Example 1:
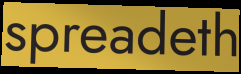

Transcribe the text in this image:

spreadeth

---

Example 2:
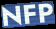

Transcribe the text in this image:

NFP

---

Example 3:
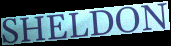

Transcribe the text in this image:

SHELDON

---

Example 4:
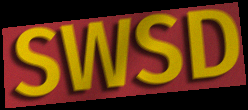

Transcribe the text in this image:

SWSD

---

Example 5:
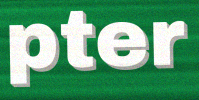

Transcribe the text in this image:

pter